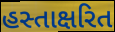
હસ્તાક્ષરિત